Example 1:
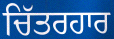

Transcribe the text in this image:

ਚਿੱਤਰਹਾਰ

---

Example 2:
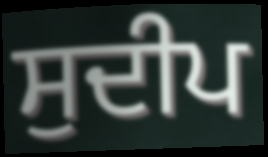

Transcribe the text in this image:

ਸੁਦੀਪ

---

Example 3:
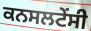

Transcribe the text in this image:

ਕਨਸਲਟੇਂਸੀ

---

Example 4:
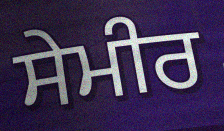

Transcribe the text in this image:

ਸੇਮੀਰ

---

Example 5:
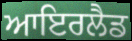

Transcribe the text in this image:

ਆਇਰਲੈਡ